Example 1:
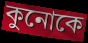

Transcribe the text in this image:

কুনোকে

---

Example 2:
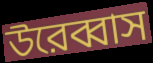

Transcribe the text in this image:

উরেব্বাস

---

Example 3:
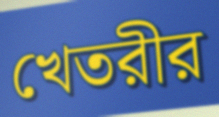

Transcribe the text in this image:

খেতরীর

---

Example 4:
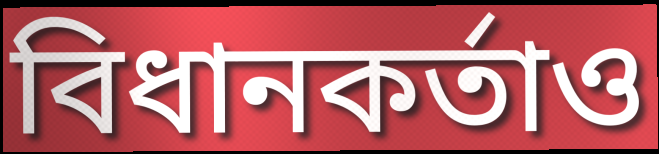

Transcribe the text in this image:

বিধানকর্তাও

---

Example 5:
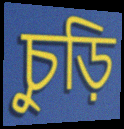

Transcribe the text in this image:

চুড়ি